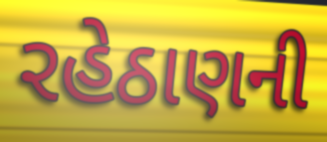
રહેઠાણની